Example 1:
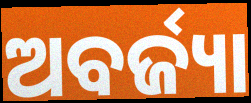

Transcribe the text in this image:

ଅବର୍ଜ୍ୟା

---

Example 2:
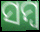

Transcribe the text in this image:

ସମ୍ବ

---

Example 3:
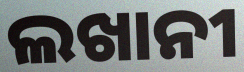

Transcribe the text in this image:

ଲଖାନୀ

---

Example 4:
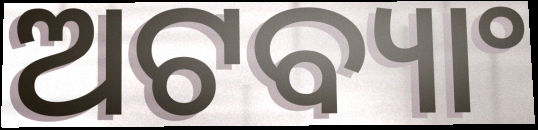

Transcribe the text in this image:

ଅଟବ୍ୟାଂ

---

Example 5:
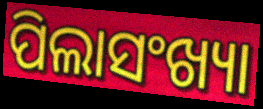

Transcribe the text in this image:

ପିଲାସଂଖ୍ୟା